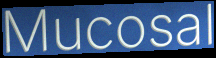
Mucosal